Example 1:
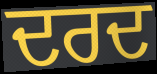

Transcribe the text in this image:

ਦਰਦ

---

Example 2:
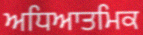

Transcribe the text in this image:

ਅਧਿਆਤਮਿਕ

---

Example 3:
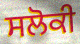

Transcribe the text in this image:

ਸਲੋਕੀ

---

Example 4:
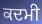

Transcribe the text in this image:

ਕਦਮੀ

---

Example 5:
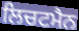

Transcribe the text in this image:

ਲਿਚਟਮੈਨ